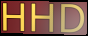
HHD